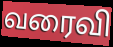
வரைவி